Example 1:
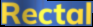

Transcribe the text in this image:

Rectal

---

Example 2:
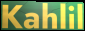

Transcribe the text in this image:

Kahlil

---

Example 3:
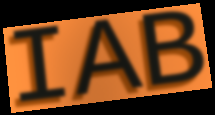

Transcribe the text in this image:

IAB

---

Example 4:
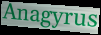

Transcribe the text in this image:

Anagyrus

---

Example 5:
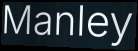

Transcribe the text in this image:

Manley